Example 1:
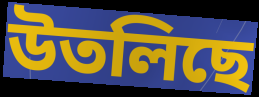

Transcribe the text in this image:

উতলিছে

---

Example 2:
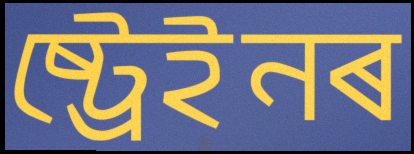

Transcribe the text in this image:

ষ্ট্ৰেইনৰ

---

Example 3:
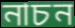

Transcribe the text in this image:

নাচন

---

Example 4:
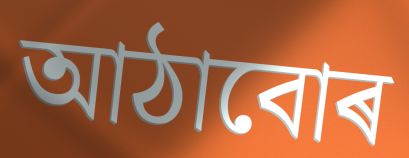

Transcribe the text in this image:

আঠাবোৰ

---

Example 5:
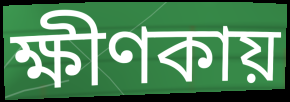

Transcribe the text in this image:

ক্ষীণকায়